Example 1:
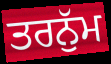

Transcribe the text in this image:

ਤਰਨੁੱਮ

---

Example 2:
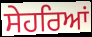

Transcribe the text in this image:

ਸੇਹਰਿਆਂ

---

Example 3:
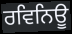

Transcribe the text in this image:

ਰਵਿਨਿਊ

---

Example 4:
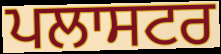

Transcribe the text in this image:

ਪਲਾਸਟਰ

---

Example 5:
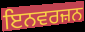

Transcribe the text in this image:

ਇਨਵਰਜ਼ਨ